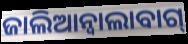
ଜାଲିଆନ୍ଵାଲାବାଗ୍